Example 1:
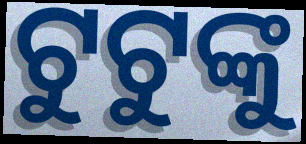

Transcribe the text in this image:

ଟୁଟୁଙ୍କୁ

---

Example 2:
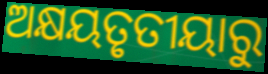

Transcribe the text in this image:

ଅକ୍ଷୟତୃତୀୟାରୁ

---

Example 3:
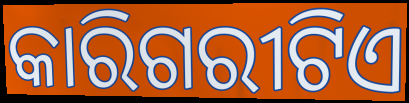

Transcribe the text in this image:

କାରିଗରୀଟିଏ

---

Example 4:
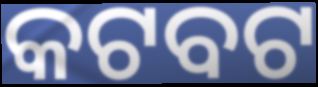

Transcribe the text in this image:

କଟବଟ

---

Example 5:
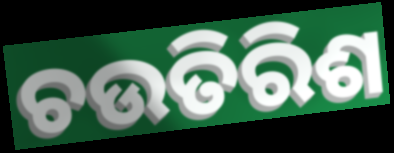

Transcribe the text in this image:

ଚଉତିରିଶ